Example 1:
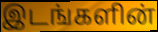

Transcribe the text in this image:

இடங்களின்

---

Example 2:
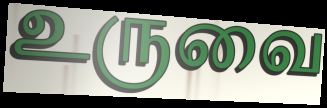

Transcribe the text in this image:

உருவை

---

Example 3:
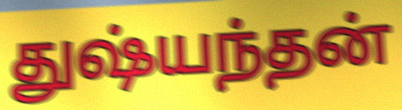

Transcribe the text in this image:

துஷ்யந்தன்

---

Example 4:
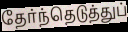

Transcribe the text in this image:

தேர்ந்தெடுத்துப்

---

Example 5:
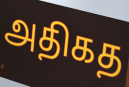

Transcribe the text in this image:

அதிகத